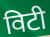
विटी